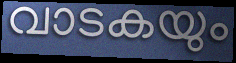
വാടകയും